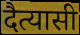
दैत्यासी